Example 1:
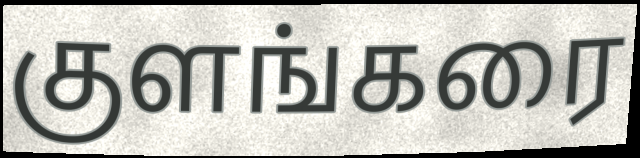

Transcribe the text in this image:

குளங்கரை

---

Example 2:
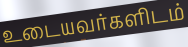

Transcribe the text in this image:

உடையவர்களிடம்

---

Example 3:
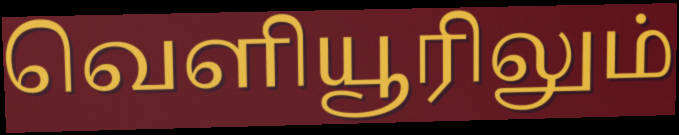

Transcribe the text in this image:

வெளியூரிலும்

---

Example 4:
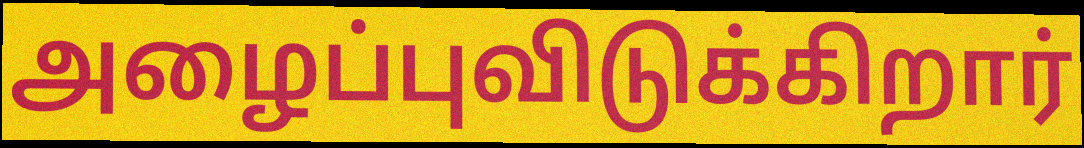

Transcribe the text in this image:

அழைப்புவிடுக்கிறார்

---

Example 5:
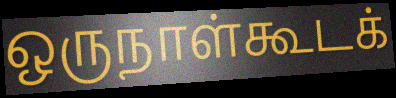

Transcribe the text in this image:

ஒருநாள்கூடக்